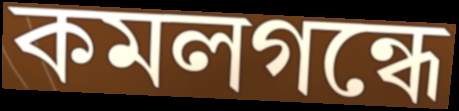
কমলগন্ধে